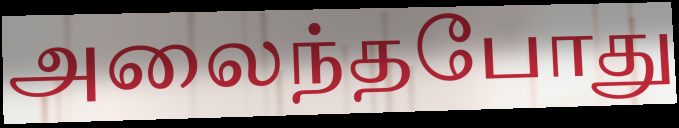
அலைந்தபோது